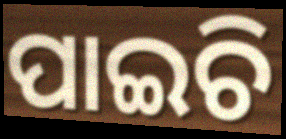
ପାଇଚି